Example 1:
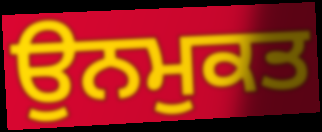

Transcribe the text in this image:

ਉਨਮੁਕਤ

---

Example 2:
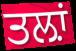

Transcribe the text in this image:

ਤਲ਼ਾਂ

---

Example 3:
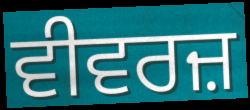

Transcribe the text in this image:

ਵੀਵਰਜ਼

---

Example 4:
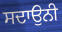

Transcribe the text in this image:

ਸਦਾਉਨੀ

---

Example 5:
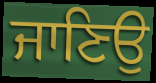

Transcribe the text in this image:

ਜਾਣਿਉ